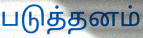
படுத்தனம்